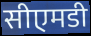
सीएमडी